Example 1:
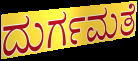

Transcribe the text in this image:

ದುರ್ಗಮತೆ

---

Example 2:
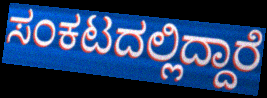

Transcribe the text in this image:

ಸಂಕಟದಲ್ಲಿದ್ದಾರೆ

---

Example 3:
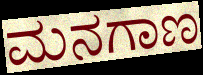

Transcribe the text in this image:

ಮನಗಾಣ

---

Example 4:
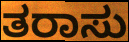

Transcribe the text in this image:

ತರಾಸು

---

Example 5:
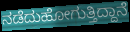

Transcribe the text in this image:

ನಡೆದುಹೋಗುತ್ತಿದ್ದಾನೆ